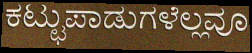
ಕಟ್ಟುಪಾಡುಗಳೆಲ್ಲವೂ